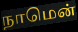
நாமென்